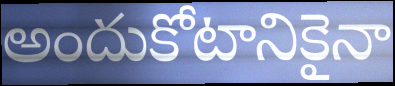
అందుకోటానికైనా